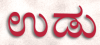
ಉಡು